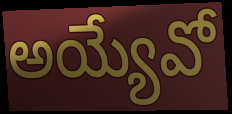
అయ్యేవో